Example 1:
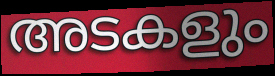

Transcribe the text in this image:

അടകളും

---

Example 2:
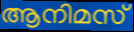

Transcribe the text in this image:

ആനിമസ്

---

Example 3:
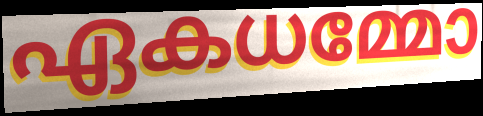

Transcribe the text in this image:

ഏകധമ്മോ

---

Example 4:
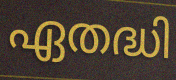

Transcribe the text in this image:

ഏതദ്ധി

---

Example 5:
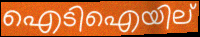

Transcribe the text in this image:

ഐടിഐയില്